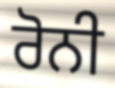
ਰੋਨੀ